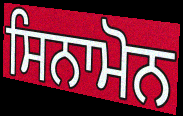
ਸਿਨਾਮੋਨ